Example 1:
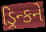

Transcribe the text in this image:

ડ્રિન્કને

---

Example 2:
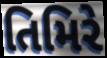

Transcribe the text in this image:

તિમિરે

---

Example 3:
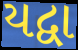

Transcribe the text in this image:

યદ્વા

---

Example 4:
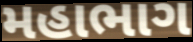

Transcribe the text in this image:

મહાભાગ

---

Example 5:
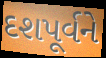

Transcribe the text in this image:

દશપૂર્વને